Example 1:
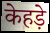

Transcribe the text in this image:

केहड़े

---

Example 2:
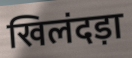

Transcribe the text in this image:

खिलंदड़ा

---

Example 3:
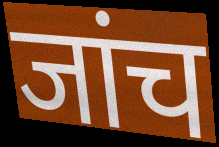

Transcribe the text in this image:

जांच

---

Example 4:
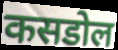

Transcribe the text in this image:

कसडोल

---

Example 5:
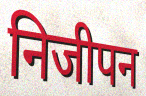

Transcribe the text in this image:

निजीपन